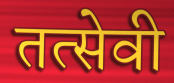
तत्सेवी